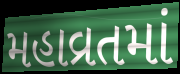
મહાવ્રતમાં